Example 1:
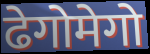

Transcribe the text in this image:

ढेगोमेगो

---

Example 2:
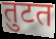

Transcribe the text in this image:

तुटत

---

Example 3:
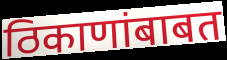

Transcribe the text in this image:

ठिकाणांबाबत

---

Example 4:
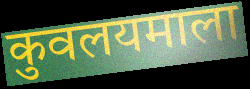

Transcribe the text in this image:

कुवलयमाला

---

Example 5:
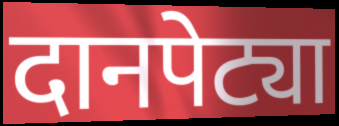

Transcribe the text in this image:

दानपेट्या